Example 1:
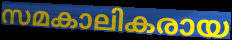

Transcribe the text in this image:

സമകാലികരായ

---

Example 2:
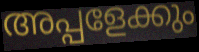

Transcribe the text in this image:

അപ്പളേക്കും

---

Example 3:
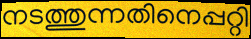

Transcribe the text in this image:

നടത്തുന്നതിനെപ്പറ്റി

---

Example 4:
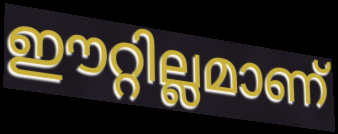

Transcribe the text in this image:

ഈറ്റില്ലമാണ്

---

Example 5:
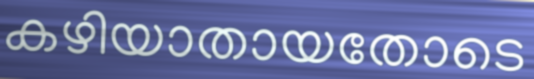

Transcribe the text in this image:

കഴിയാതായതോടെ